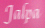
Jalpa